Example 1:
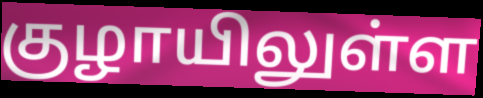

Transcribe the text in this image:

குழாயிலுள்ள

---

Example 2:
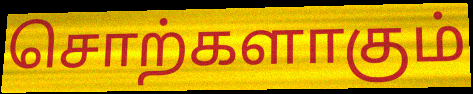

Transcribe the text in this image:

சொற்களாகும்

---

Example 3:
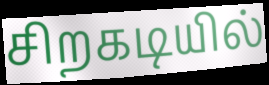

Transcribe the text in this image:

சிறகடியில்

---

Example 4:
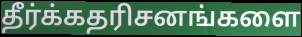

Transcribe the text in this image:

தீர்க்கதரிசனங்களை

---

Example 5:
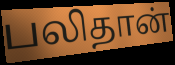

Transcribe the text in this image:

பலிதான்